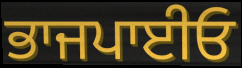
ਭਾਜਪਾਈਓ